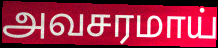
அவசரமாய்